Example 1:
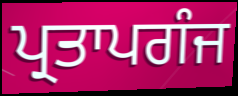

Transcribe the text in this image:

ਪ੍ਰਤਾਪਗੰਜ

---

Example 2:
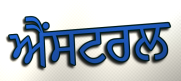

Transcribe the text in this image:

ਐਂਸਟਰਲ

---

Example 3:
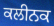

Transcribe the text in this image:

ਕਲੀਨਕ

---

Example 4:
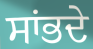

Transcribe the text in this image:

ਸਾਂਭਦੇ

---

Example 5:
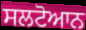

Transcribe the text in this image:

ਸਲਟੋਆਨ